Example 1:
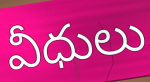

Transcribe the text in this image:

వీధులు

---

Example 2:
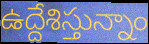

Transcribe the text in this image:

ఉద్దేశిస్తున్నాం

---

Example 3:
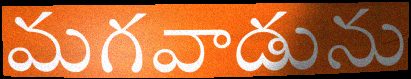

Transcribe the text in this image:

మగవాడును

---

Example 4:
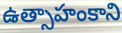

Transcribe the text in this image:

ఉత్సాహంకాని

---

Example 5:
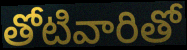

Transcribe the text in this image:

తోటివారితో